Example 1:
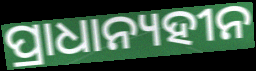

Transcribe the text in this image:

ପ୍ରାଧାନ୍ୟହୀନ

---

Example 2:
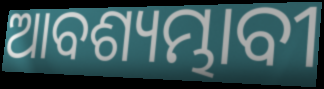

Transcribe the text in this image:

ଆବଶ୍ୟମ୍ଭାବୀ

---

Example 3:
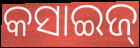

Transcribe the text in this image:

କସାଇଜ୍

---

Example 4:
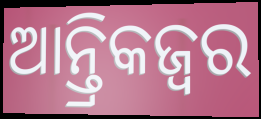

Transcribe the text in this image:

ଆନ୍ତ୍ରିକଜ୍ଵର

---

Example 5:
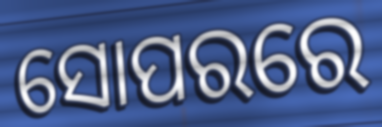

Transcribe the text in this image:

ସୋପରରେ